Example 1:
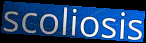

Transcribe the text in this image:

scoliosis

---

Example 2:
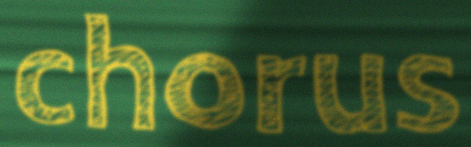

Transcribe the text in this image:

chorus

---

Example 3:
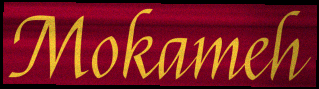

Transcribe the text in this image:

Mokameh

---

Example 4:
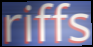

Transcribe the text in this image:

riffs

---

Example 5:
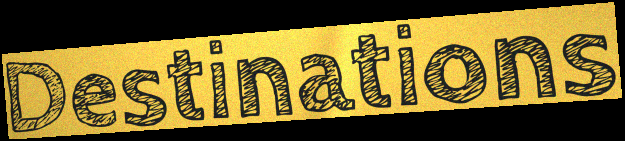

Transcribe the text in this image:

Destinations